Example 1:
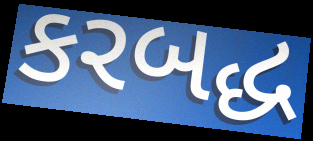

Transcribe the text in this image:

કરબદ્ધ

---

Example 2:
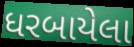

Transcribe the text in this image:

ધરબાયેલા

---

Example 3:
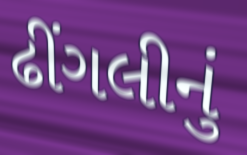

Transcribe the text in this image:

ઢીંગલીનું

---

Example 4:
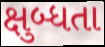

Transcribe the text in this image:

ક્ષુબ્ધતા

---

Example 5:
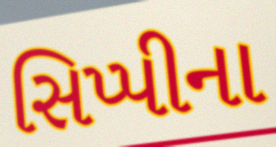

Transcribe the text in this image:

સિપ્પીના